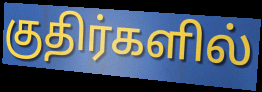
குதிர்களில்